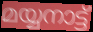
മയ്യനാട്ട്